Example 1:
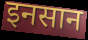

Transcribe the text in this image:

इनसान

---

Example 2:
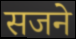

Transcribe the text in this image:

सजने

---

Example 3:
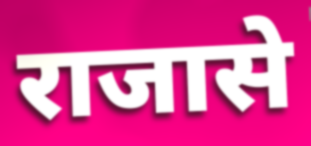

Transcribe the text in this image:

राजासे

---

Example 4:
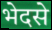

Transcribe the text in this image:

भेदसे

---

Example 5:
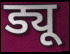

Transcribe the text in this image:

ड्यू